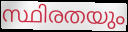
സ്ഥിരതയും